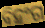
ବିହଂଗ